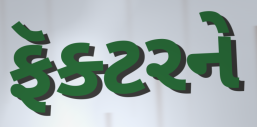
ફૅક્ટરને